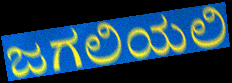
ಜಗಲಿಯಲಿ